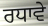
ਰਧਾਵੇ